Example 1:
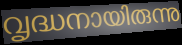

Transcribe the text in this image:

വൃദ്ധനായിരുന്നു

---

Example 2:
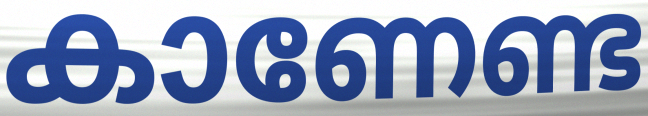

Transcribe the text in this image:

കാണേണ്ട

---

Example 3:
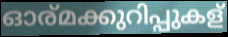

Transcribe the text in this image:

ഓര്മക്കുറിപ്പുകള്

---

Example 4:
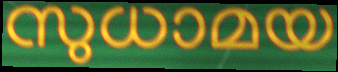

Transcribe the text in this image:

സുധാമയ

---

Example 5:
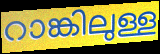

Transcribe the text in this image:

റാങ്കിലുള്ള